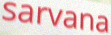
sarvana